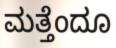
ಮತ್ತೆಂದೂ